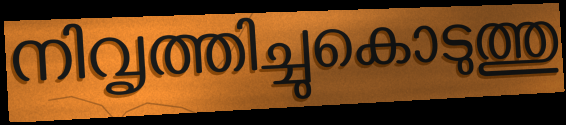
നിവൃത്തിച്ചുകൊടുത്തു